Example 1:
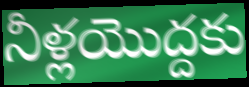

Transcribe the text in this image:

నీళ్లయొద్దకు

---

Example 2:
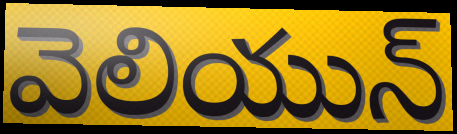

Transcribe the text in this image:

వెలియున్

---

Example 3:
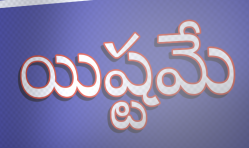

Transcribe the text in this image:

యిష్టమే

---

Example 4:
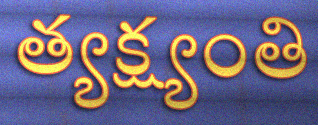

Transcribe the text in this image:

త్యక్ష్యంతి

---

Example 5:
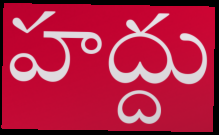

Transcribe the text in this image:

హద్దు